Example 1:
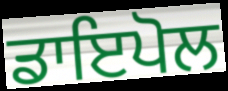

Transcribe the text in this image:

ਡਾਇਪੋਲ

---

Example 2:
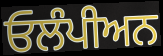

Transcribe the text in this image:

ਓਲੰਪੀਅਨ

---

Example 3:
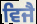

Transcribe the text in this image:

ਵਿਜੈ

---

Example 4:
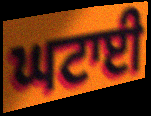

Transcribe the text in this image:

ਘਟਾਈ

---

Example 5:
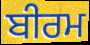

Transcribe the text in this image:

ਬੀਰਮ